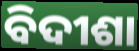
ବିଦୀଶା